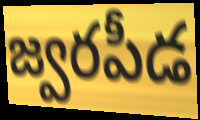
జ్వరపీడ